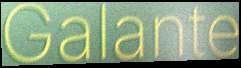
Galante